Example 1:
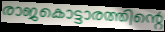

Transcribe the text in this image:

രാജകൊട്ടാരത്തിന്റെ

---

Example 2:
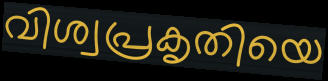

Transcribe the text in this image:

വിശ്വപ്രകൃതിയെ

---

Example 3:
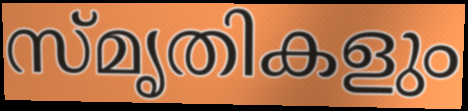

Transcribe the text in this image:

സ്മൃതികളും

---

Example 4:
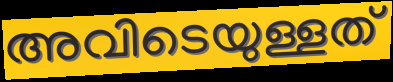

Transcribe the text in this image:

അവിടെയുള്ളത്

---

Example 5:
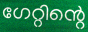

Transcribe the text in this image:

ഗേറ്റിന്റെ